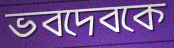
ভবদেবকে